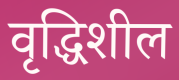
वृद्धिशील